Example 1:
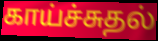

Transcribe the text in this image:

காய்ச்சுதல்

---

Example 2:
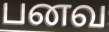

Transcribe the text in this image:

பனவ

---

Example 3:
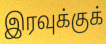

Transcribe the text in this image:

இரவுக்குக்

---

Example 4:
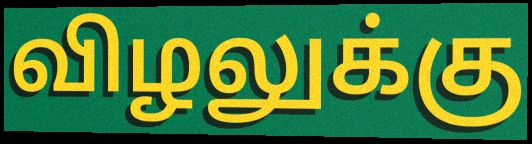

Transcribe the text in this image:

விழலுக்கு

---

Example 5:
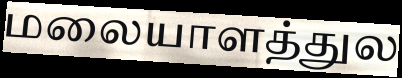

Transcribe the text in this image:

மலையாளத்துல